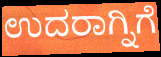
ಉದರಾಗ್ನಿಗೆ